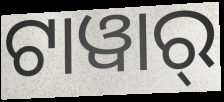
ଟାୱାର୍